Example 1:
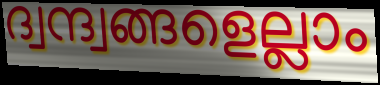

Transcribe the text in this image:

ദ്വന്ദ്വങ്ങളെല്ലാം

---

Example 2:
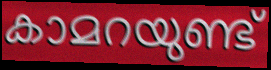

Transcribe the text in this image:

കാമറയുണ്ട്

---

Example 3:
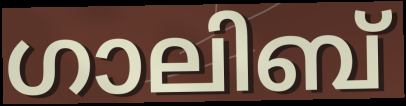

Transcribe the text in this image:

ഗാലിബ്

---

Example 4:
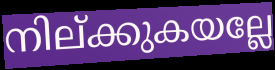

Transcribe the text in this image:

നില്ക്കുകയല്ലേ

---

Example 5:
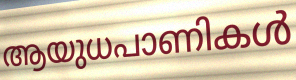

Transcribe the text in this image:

ആയുധപാണികൾ